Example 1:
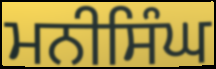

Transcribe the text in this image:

ਮਨੀਸਿੰਘ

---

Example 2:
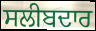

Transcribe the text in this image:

ਸਲੀਬਦਾਰ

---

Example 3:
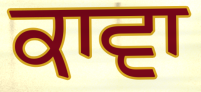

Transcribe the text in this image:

ਕਾਵਾ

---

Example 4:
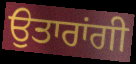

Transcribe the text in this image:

ਉਤਾਰਾਂਗੀ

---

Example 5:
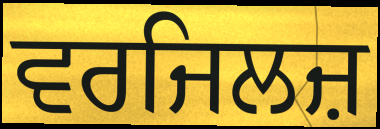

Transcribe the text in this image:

ਵਰਜਿਲਜ਼